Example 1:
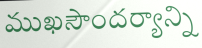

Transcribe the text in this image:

ముఖసౌందర్యాన్ని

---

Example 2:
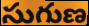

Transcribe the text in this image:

సుగుణ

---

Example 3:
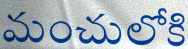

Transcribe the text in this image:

మంచులోకి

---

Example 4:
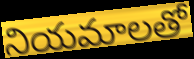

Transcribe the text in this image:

నియమాలతో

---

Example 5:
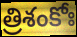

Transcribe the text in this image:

త్రిశంకోః